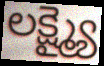
లక్ష్మ్యై